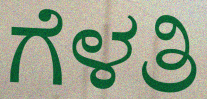
ಗೆಳತಿ